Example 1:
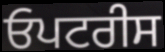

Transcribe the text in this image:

ਓਪਟਰੀਸ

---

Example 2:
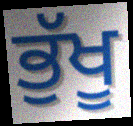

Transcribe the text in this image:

ਭੁੱਖੂ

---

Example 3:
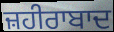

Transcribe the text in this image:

ਜ਼ਹੀਰਾਬਾਦ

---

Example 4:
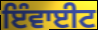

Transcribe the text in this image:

ਇੰਵਾਈਟ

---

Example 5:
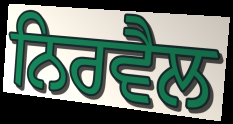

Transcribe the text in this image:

ਨਿਰਵੈਲ